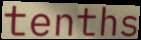
tenths